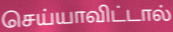
செய்யாவிட்டால்